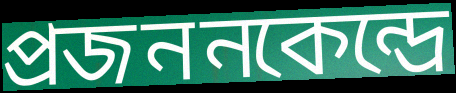
প্রজননকেন্দ্রে